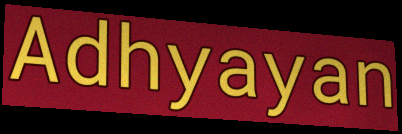
Adhyayan